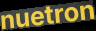
nuetron